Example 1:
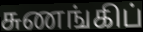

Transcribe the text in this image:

சுணங்கிப்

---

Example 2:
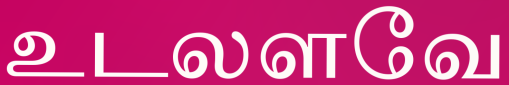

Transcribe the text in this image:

உடலளவே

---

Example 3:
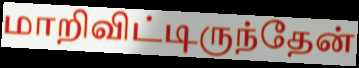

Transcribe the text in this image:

மாறிவிட்டிருந்தேன்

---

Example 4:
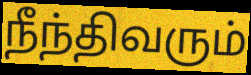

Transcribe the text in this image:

நீந்திவரும்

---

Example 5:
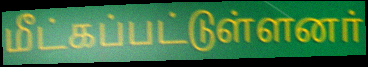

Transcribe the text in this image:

மீட்கப்பட்டுள்ளனர்